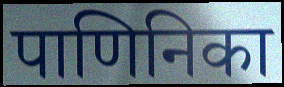
पाणिनिका